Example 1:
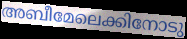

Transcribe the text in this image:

അബീമേലെക്കിനോടു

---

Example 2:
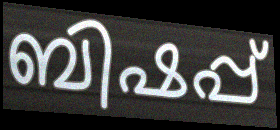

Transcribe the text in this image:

ബിഷപ്പ്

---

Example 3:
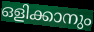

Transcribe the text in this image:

ഒളിക്കാനും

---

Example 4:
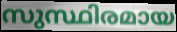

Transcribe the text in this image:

സുസ്ഥിരമായ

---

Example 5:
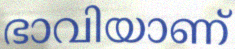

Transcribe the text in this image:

ഭാവിയാണ്